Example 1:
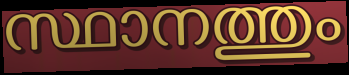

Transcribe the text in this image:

സ്ഥാനത്തും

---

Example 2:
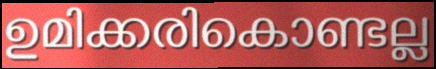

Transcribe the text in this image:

ഉമിക്കരികൊണ്ടല്ല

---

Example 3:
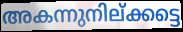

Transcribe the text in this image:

അകന്നുനില്ക്കട്ടെ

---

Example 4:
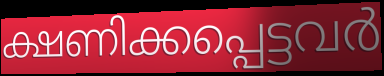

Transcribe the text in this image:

ക്ഷണിക്കപ്പെട്ടവർ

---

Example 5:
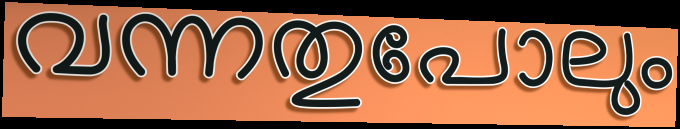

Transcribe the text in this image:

വന്നതുപോലും